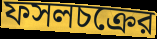
ফসলচক্রের